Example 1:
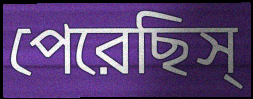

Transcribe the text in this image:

পেরেছিস্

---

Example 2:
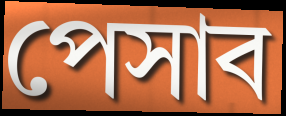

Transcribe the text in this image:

পেসাব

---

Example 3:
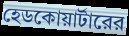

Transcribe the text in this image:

হেডকোয়ার্টারের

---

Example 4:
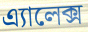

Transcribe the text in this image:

এ্যালেক্স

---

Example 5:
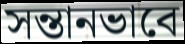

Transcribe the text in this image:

সন্তানভাবে